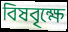
বিষবৃক্ষে